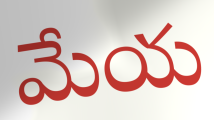
మేయ